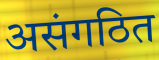
असंगठित